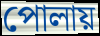
পোলায়